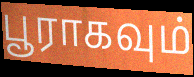
பூராகவும்